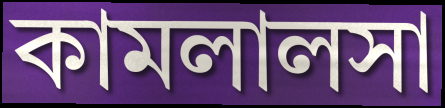
কামলালসা